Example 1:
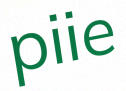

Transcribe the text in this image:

piie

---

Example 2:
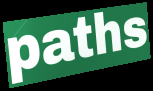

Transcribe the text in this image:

paths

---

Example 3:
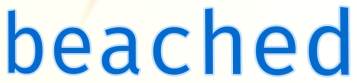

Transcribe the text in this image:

beached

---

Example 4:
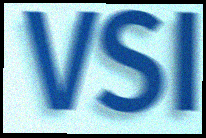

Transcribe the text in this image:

VSI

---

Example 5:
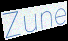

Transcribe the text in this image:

Zune